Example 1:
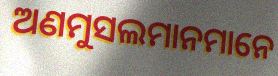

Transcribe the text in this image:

ଅଣମୁସଲମାନମାନେ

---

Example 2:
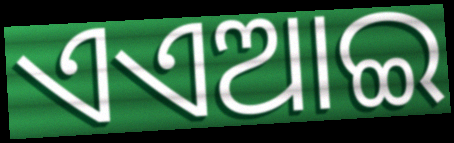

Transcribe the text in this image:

ଏଏଆଇ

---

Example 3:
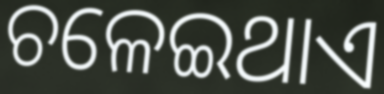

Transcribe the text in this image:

ଚଳେଇଥାଏ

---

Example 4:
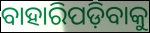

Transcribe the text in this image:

ବାହାରିପଡ଼ିବାକୁ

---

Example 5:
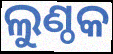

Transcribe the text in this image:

ଲୁଣ୍ଠକ